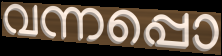
വന്നപ്പൊ